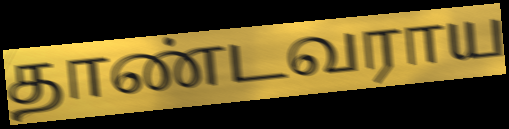
தாண்டவராய